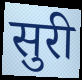
सुरी